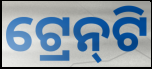
ଟ୍ରେନ୍‌ଟି